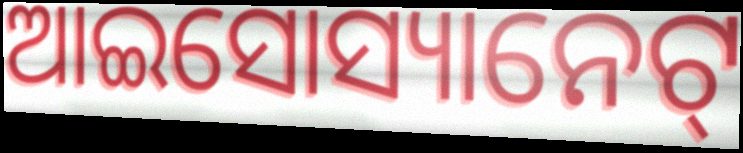
ଆଇସୋସ୍ୟାନେଟ୍